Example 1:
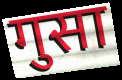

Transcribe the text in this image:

गुसा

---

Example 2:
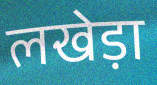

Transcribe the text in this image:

लखेड़ा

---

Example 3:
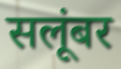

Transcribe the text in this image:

सलूंबर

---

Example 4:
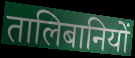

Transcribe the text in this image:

तालिबानियों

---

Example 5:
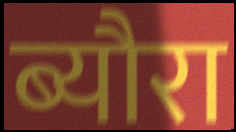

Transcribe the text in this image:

ब्‍यौरा